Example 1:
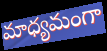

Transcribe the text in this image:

మాధ్యమంగా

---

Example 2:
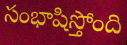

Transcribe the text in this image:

సంభాషిస్తోంది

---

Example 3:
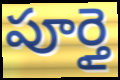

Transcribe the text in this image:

పూర్తై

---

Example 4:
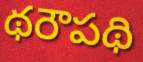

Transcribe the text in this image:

థరౌపథి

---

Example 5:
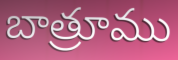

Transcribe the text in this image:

బాత్రూము